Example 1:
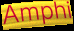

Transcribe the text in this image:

Amphi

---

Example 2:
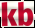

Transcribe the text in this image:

kb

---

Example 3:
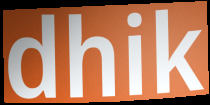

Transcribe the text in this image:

dhik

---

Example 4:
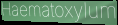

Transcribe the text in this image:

Haematoxylum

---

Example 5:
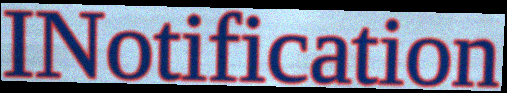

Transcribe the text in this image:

INotification